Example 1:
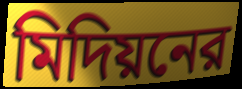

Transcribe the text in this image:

মিদিয়নের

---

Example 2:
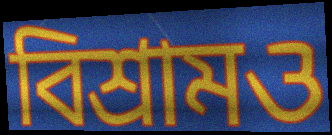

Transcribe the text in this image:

বিশ্রামও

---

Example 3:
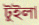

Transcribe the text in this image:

টুইলা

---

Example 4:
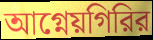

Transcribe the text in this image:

আগ্নেয়গিরির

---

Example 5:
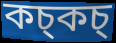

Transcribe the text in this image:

কচ্কচ্